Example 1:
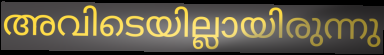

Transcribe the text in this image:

അവിടെയില്ലായിരുന്നു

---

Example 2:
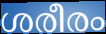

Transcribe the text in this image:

ശരീരം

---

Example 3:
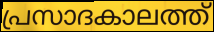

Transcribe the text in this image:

പ്രസാദകാലത്ത്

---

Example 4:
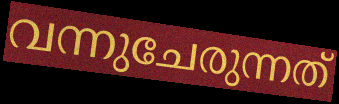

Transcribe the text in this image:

വന്നുചേരുന്നത്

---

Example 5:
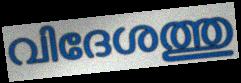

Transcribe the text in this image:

വിദേശത്തു